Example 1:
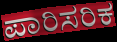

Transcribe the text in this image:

ಪಾರಿಸರಿಕ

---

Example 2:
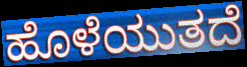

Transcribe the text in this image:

ಹೊಳೆಯುತದೆ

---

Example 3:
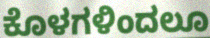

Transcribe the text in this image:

ಕೊಳಗಳಿಂದಲೂ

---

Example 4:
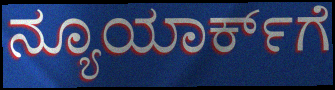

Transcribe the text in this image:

ನ್ಯೂಯಾರ್ಕ್‌ಗೆ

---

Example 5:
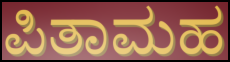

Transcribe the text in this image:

ಪಿತಾಮಹ